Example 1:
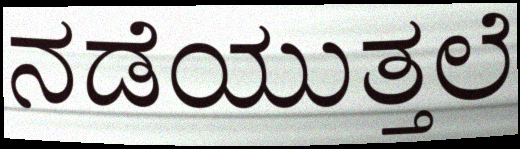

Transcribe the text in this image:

ನಡೆಯುತ್ತಲೆ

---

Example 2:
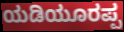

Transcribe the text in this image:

ಯಡಿಯೂರಪ್ಪ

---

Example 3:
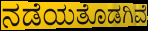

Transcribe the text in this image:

ನಡೆಯತೊಡಗಿವೆ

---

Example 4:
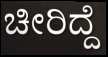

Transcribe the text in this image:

ಚೀರಿದ್ದೆ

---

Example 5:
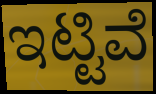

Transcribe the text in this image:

ಇಟ್ಟಿವೆ